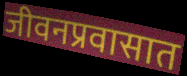
जीवनप्रवासात